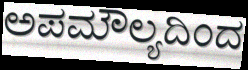
ಅಪಮೌಲ್ಯದಿಂದ